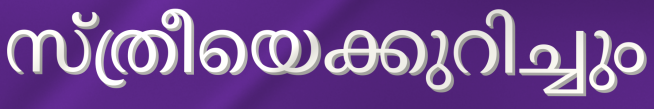
സ്ത്രീയെക്കുറിച്ചും